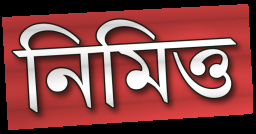
নিমিত্ত